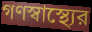
গণস্বাস্থ্যের